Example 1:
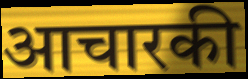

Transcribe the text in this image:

आचारकी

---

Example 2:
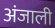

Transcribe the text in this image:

अंजाली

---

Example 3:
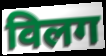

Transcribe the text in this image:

विलग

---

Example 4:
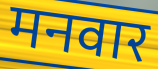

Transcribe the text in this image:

मनवार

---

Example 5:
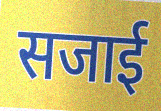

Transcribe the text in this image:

सजाई